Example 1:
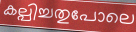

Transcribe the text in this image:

കല്പിച്ചതുപോലെ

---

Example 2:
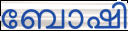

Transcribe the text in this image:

ബോഷി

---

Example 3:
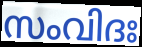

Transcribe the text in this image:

സംവിദഃ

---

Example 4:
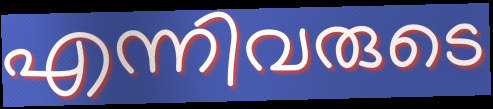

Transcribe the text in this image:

എന്നിവരുടെ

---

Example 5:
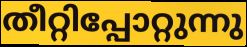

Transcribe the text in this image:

തീറ്റിപ്പോറ്റുന്നു